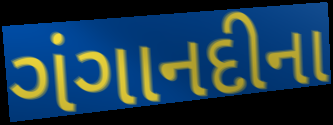
ગંગાનદીના